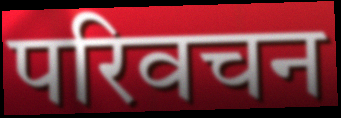
परिवचन